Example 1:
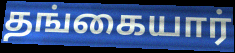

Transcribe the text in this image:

தங்கையார்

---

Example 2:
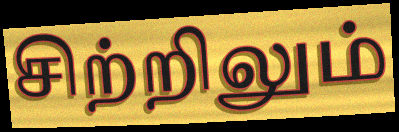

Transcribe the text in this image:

சிற்றிலும்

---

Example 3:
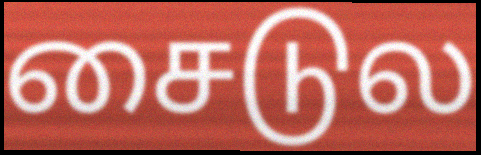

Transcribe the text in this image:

சைடுல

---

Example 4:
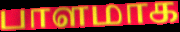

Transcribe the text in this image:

பாளமாக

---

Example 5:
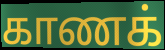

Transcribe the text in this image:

காணக்